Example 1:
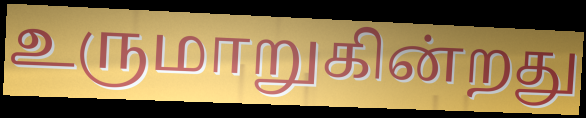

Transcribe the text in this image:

உருமாறுகின்றது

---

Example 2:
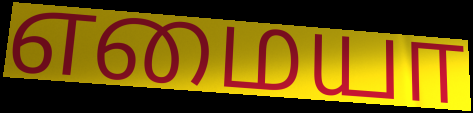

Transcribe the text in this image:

எமையா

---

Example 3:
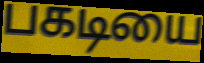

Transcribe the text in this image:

பகடியை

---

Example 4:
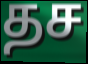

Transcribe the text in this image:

தச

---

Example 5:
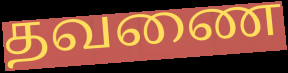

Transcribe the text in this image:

தவணை